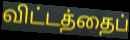
விட்டத்தைப்